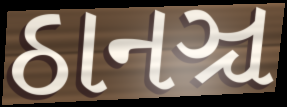
ઠાનઞ્ચ